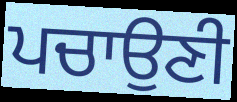
ਪਚਾਉਣੀ